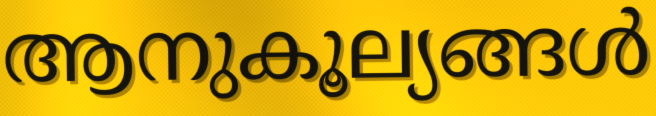
ആനുകൂല്യങ്ങൾ